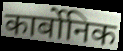
कार्बोनिक